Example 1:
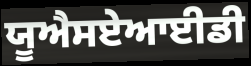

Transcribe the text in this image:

ਯੂਐਸਏਆਈਡੀ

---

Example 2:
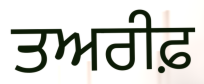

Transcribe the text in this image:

ਤਅਰੀਫ਼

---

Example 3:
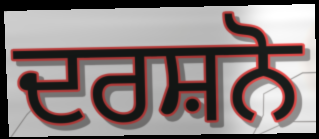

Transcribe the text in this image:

ਦਰਸ਼ਨੋ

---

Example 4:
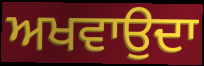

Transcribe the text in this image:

ਅਖਵਾਉਦਾ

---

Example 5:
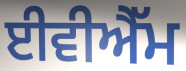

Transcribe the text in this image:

ਈਵੀਐੱਮ